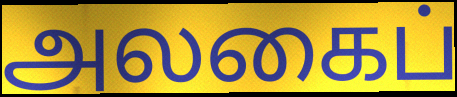
அலகைப்